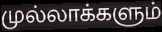
முல்லாக்களும்